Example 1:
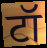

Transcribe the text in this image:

टॉ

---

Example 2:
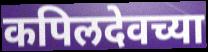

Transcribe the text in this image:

कपिलदेवच्या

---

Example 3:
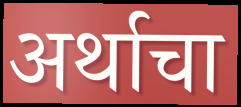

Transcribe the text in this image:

अर्थाचा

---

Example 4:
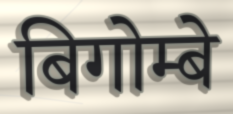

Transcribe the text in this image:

बिगोम्बे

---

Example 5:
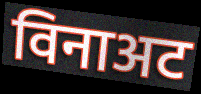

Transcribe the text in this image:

विनाअट